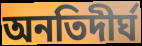
অনতিদীর্ঘ